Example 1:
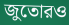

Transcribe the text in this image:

জুতোরও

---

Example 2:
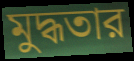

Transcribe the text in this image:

মুদ্ধতার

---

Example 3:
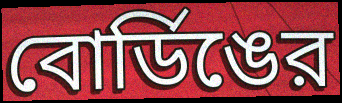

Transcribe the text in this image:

বোর্ডিঙের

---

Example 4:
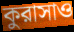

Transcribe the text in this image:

কুরাসাও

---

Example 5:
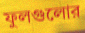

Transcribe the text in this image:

ফুলগুলোর